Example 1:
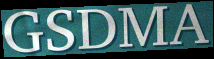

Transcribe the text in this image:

GSDMA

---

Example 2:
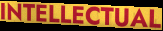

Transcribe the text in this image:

INTELLECTUAL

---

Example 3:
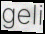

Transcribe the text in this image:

geli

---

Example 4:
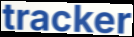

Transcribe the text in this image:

tracker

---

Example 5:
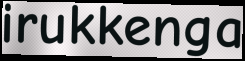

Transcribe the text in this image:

irukkenga